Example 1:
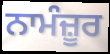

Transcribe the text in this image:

ਨਾਮੰਜ਼ੂਰ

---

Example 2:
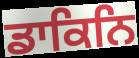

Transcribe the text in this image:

ਡਾਕਿਨਿ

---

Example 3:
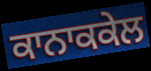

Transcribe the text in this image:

ਕਾਨਾਕਕੇਲ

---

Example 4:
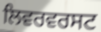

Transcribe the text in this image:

ਲਿਵਰਵਰਸਟ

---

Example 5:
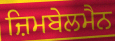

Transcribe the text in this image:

ਜ਼ਿਮਬੇਲਮੈਨ